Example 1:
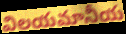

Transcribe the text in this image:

విలయమానీయ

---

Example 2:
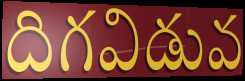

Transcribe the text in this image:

దిగవిడువ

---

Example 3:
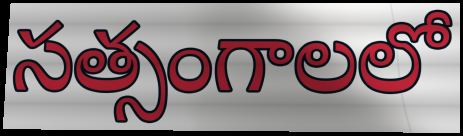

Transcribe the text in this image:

సత్సంగాలలో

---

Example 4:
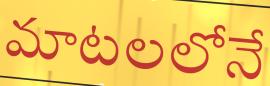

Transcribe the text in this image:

మాటలలోనే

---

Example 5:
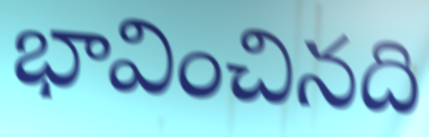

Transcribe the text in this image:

భావించినది